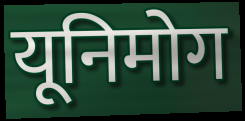
यूनिमोग